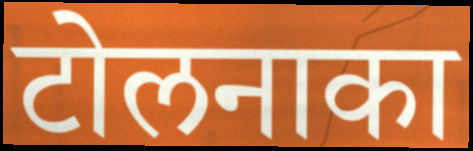
टोलनाका